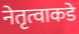
नेतृत्वाकडे